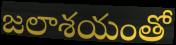
జలాశయంతో